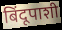
बिंदूपाशी